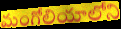
మంగోలియాలోని